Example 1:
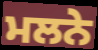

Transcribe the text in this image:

ਮਲਨੇ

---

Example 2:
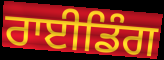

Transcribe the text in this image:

ਰਾਈਡਿੰਗ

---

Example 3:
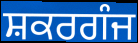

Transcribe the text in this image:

ਸ਼ਕਰਗੰਜ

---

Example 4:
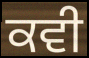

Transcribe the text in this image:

ਕਵੀ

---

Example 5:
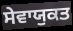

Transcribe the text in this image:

ਸੇਵਾਯੁਕਤ